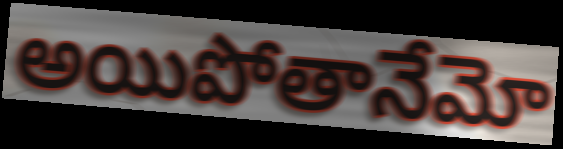
అయిపోతానేమో